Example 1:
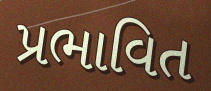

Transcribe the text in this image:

પ્રભાવિત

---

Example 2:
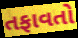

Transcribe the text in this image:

તફાવતો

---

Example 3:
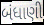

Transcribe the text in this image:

બંધાણી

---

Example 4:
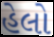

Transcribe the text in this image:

હેલો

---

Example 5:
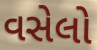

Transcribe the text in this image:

વસેલો